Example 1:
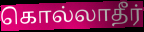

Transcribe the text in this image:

கொல்லாதீர்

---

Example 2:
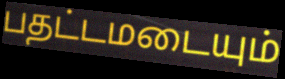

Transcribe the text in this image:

பதட்டமடையும்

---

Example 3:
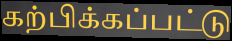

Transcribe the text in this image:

கற்பிக்கப்பட்டு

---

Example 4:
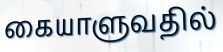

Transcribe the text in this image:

கையாளுவதில்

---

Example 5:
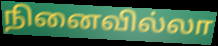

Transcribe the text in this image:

நினைவில்லா